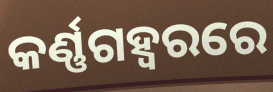
କର୍ଣ୍ଣଗହ୍ଵରରେ